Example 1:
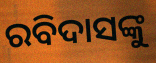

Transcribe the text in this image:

ରବିଦାସଙ୍କୁ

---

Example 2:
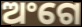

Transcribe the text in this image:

ଅଂଗେ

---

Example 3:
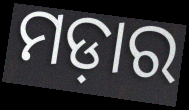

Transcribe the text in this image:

ମଡ଼ାର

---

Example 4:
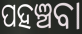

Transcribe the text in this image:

ପହଞ୍ଚବା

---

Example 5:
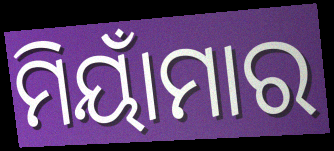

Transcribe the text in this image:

ମିୟାଁମାର